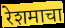
रेशमाचा